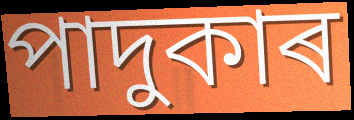
পাদুকাৰ